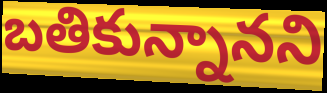
బతికున్నానని